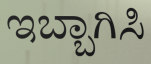
ಇಬ್ಬಾಗಿಸಿ